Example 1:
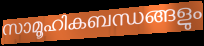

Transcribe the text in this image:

സാമൂഹികബന്ധങ്ങളും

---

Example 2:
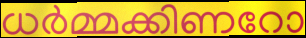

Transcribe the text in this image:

ധർമ്മക്കിണറോ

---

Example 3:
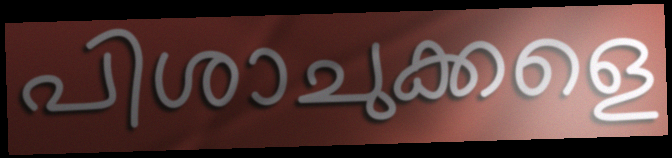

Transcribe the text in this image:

പിശാചുക്കളെ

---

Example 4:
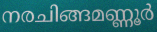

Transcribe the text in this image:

നരചിങ്ങമണ്ണൂർ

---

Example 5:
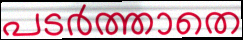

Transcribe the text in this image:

പടർത്താതെ